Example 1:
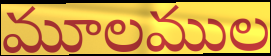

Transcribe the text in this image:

మూలముల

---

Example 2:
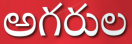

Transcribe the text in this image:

అగరుల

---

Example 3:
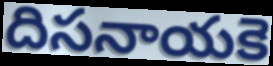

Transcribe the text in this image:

దిసనాయకె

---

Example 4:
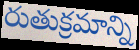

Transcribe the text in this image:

రుతుక్రమాన్ని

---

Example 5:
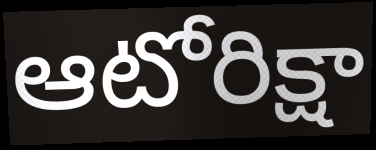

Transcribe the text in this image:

ఆటోరిక్షా